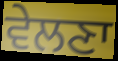
ਵੇਲਣਾ